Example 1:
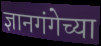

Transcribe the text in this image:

ज्ञानगंगेच्या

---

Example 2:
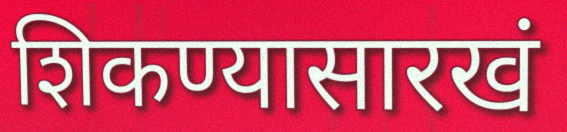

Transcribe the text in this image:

शिकण्यासारखं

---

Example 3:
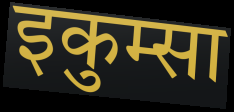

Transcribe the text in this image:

इकुम्सा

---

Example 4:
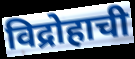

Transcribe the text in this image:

विद्रोहाची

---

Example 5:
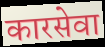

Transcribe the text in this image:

कारसेवा